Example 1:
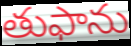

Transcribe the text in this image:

తుఫాను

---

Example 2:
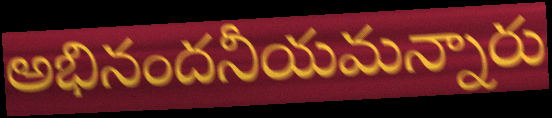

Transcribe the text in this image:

అభినందనీయమన్నారు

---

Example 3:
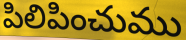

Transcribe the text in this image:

పిలిపించుము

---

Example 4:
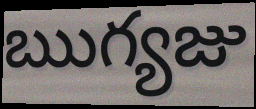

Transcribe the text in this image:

ఋగ్యజు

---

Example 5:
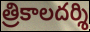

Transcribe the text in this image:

త్రికాలదర్శి